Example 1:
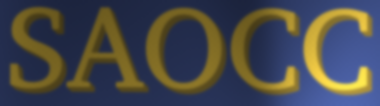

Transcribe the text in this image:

SAOCC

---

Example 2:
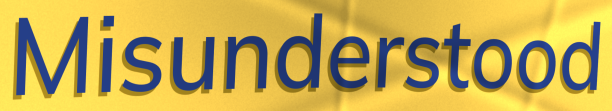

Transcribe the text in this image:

Misunderstood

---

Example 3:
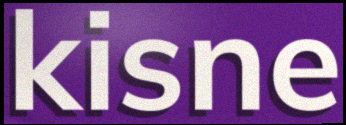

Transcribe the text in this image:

kisne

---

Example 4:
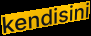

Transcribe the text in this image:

kendisini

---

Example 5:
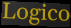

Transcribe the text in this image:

Logico